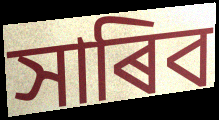
সাৰিব